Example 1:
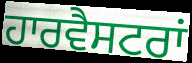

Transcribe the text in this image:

ਹਾਰਵੈਸਟਰਾਂ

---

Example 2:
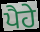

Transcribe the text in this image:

ਪੈਹੇ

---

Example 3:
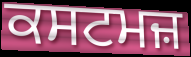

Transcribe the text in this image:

ਕਸਟਮਜ਼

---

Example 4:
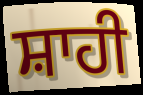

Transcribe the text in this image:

ਸ਼ਾਹੀ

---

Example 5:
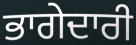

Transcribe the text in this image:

ਭਾਗੇਦਾਰੀ